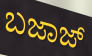
ಬಜಾಜ್